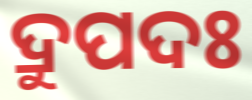
ଦ୍ରୁପଦଃ